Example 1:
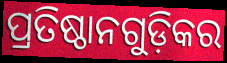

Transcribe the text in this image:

ପ୍ରତିଷ୍ଠାନଗୁଡ଼ିକର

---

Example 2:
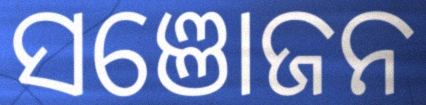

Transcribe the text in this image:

ସଞୋଜନ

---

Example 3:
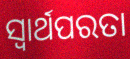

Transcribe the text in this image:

ସ୍ବାର୍ଥପରତା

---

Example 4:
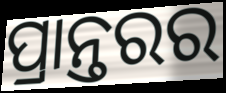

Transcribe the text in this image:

ପ୍ରାନ୍ତରର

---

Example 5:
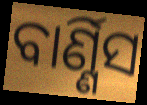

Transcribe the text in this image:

ବାର୍ଣ୍ଣିସ